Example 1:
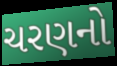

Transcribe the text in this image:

ચરણનો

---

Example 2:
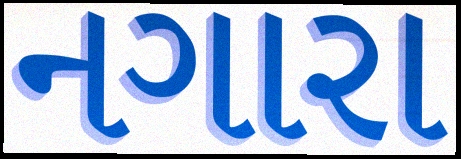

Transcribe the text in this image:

નગારા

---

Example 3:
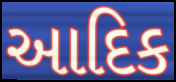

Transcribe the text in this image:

આદિક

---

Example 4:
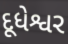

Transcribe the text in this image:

દૂધેશ્વર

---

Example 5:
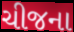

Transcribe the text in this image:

ચીજના